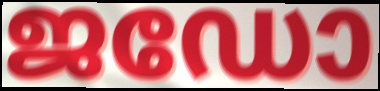
ജഡോ